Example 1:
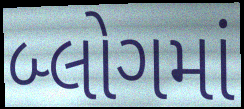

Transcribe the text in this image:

બ્લોગમાં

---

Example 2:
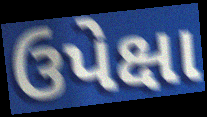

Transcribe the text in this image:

ઉપેક્ષા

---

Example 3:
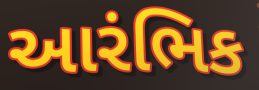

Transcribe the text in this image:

આરંભિક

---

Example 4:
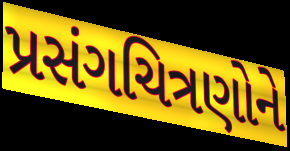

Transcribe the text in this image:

પ્રસંગચિત્રણોને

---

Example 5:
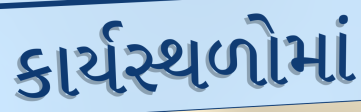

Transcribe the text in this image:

કાર્યસ્થળોમાં